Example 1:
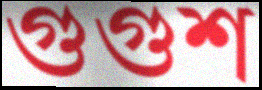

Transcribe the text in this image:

গুগুশ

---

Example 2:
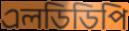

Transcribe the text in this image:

এলডিডিপি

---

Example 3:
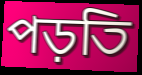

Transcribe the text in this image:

পড়তি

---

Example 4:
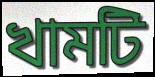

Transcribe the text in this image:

খামটি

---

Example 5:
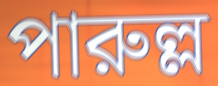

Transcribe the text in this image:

পারুল্ল